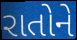
રાતોને